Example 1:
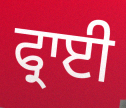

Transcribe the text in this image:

ਫ੍ਰਾਈ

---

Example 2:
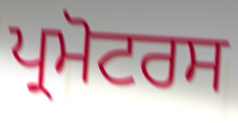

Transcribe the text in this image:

ਪ੍ਰਮੋਟਰਸ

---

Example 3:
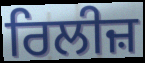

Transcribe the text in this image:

ਰਿਲੀਜ਼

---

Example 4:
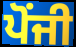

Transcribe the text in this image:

ਪੋਂਜੀ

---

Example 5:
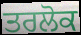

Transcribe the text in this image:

ਤਰਲੋਕ